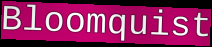
Bloomquist